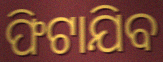
ଫିଟାଯିବ